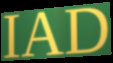
IAD